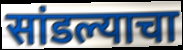
सांडल्याचा